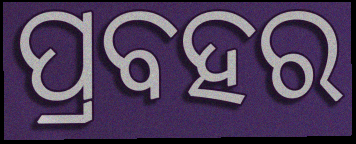
ପ୍ରବହର